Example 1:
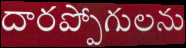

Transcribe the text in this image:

దారప్పోగులను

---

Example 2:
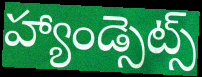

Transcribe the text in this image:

హ్యాండ్సెట్స్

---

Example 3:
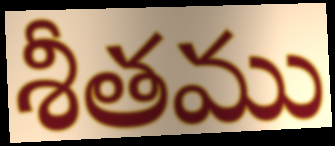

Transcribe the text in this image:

శీతము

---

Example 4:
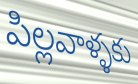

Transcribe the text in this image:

పిల్లవాళ్ళకు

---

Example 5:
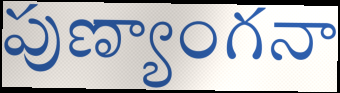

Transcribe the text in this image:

పుణ్యాంగనా